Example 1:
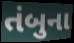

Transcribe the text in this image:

તંબુના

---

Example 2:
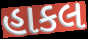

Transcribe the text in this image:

હાકલ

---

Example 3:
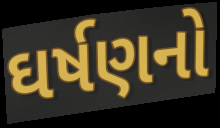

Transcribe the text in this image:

ઘર્ષણનો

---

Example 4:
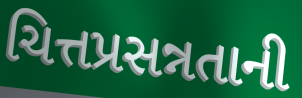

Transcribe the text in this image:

ચિત્તપ્રસન્નતાની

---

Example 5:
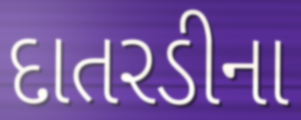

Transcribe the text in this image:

દાતરડીના